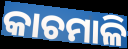
କାଚମାଳି